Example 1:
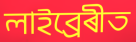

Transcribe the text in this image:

লাইব্ৰেৰীত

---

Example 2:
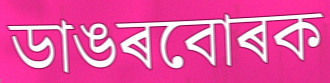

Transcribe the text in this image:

ডাঙৰবোৰক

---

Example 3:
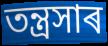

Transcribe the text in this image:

তন্ত্ৰসাৰ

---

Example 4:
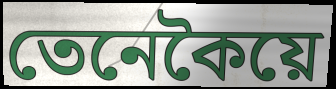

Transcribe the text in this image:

তেনেকৈয়ে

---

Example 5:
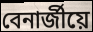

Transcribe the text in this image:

বেনাৰ্জীয়ে